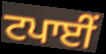
ਟਪਾਈਂ